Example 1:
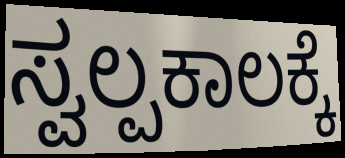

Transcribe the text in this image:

ಸ್ವಲ್ಪಕಾಲಕ್ಕೆ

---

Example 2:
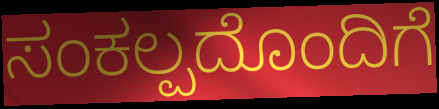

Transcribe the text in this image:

ಸಂಕಲ್ಪದೊಂದಿಗೆ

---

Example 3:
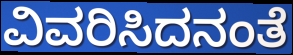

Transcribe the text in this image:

ವಿವರಿಸಿದನಂತೆ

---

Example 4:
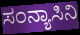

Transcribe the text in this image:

ಸಂನ್ಯಾಸಿನಿ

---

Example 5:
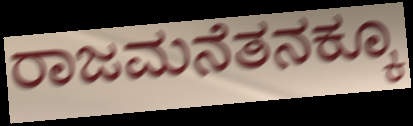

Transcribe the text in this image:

ರಾಜಮನೆತನಕ್ಕೂ